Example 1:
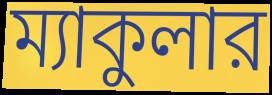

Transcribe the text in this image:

ম্যাকুলার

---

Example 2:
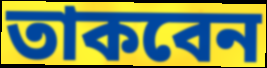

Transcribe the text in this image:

তাকবেন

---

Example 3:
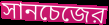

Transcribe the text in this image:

সানচেজের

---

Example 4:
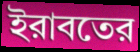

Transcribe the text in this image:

ইরাবতের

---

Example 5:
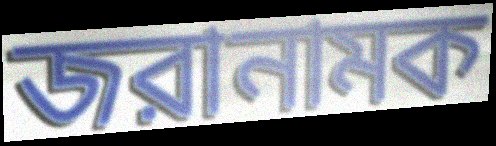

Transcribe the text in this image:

জরানামক